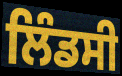
ਲਿੰਡਸੀ